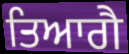
ਤਿਆਗੈ